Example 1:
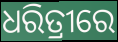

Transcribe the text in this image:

ଧରିତ୍ରୀରେ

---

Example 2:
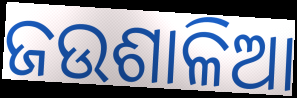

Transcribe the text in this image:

ଜଉଶାଳିଆ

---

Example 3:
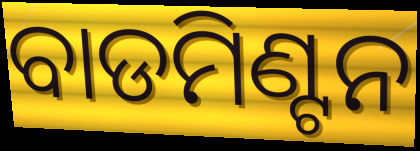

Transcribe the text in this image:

ବାଡମିଣ୍ଟନ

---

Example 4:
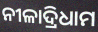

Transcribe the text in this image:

ନୀଳାଦ୍ରିଧାମ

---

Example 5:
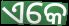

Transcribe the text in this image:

ଏକେ